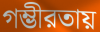
গম্ভীরতায়